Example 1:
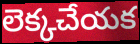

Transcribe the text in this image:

లెక్కచేయక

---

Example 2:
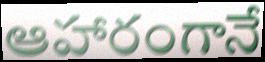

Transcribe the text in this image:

ఆహారంగానే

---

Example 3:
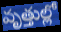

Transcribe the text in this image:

వృత్తుల్లో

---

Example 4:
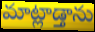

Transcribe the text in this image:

మాట్లాడ్తాను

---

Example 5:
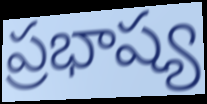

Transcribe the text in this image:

ప్రభాష్య